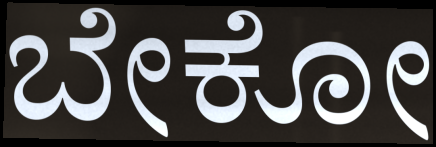
ಬೇಕೋ